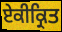
ਏਕੀਕ੍ਰਿਤ